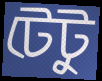
টেটু